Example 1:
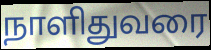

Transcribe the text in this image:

நாளிதுவரை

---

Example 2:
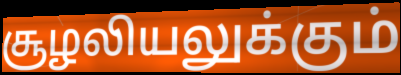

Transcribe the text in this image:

சூழலியலுக்கும்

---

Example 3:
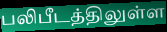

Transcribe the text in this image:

பலிபீடத்திலுள்ள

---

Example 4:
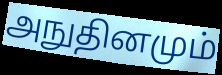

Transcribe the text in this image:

அநுதினமும்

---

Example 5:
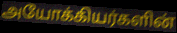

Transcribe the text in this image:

அயோக்கியர்களின்